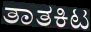
ತಾತಕಿಟ